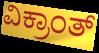
ವಿಕ್ರಾಂತ್